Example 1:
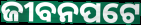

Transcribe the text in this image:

ଜୀବନପଟେ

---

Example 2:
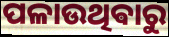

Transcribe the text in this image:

ପଳାଉଥିଵାରୁ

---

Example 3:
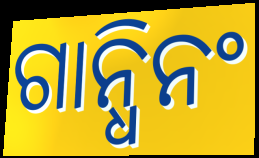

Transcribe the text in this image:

ଗାନ୍ଧିନଂ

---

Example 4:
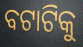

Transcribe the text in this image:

ବଟାଟିକୁ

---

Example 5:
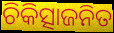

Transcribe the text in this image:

ଚିକିତ୍ସାଜନିତ